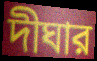
দীঘার